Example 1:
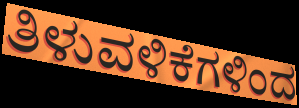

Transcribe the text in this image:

ತಿಳುವಳಿಕೆಗಳಿಂದ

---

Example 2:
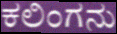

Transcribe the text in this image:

ಕಲಿಂಗನು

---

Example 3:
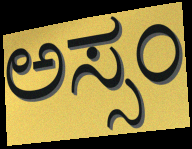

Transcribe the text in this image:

ಅಸ್ಸಂ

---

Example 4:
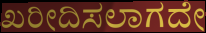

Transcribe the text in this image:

ಖರೀದಿಸಲಾಗದೇ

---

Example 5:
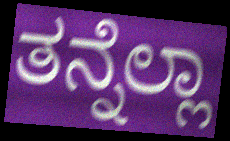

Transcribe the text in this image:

ತನ್ನೆಲ್ಲಾ